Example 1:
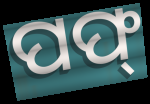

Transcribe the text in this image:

ପଫ୍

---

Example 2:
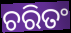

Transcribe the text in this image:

ଚରିତଂ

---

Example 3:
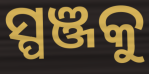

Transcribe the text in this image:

ସ୍ପଞ୍ଜକୁ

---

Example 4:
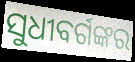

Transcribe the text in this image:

ସୁଧୀବର୍ଗଙ୍କର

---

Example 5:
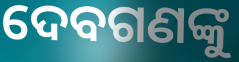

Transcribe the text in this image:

ଦେବଗଣଙ୍କୁ